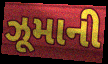
ઝૂમાની